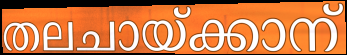
തലചായ്ക്കാന്